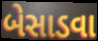
બેસાડવા